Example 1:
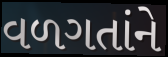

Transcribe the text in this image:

વળગતાંને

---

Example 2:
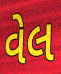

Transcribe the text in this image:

વેલ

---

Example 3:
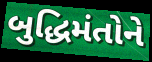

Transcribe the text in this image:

બુદ્ધિમંતોને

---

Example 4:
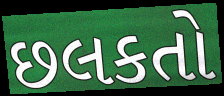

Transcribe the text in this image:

છલકતો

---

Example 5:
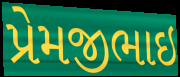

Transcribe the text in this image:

પ્રેમજીભાઇ